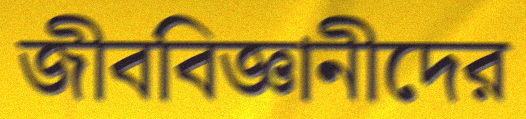
জীববিজ্ঞানীদের